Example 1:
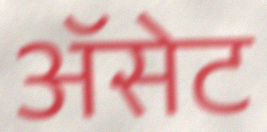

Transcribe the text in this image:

ॲसेट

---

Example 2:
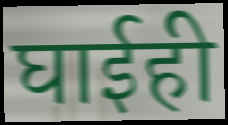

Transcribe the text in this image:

घाईही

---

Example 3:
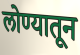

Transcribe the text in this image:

लोण्यातून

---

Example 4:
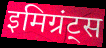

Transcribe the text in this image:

इमिग्रंट्स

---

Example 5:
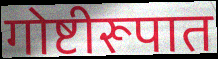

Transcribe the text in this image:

गोष्टीरूपात